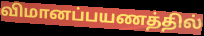
விமானப்பயணத்தில்